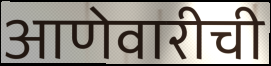
आणेवारीची